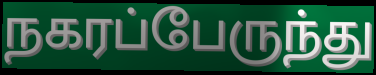
நகரப்பேருந்து